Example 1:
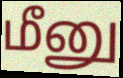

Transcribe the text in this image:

மீனு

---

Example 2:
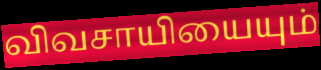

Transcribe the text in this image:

விவசாயியையும்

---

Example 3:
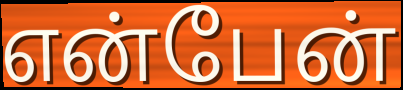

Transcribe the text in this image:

என்பேன்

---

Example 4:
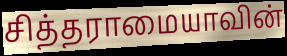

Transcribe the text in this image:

சித்தராமையாவின்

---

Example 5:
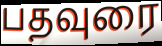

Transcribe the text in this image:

பதவுரை